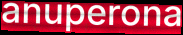
anuperona